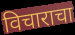
विचाराचा